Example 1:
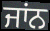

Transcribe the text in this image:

ਜਾਂਨ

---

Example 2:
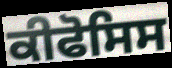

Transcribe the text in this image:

ਕੀਫੋਸਿਸ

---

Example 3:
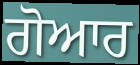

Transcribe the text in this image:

ਗੋਆਰ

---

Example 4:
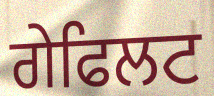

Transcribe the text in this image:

ਗੇਫਿਲਟ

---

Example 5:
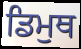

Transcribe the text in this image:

ਡਿਮੁਥ